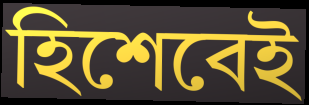
হিশেবেই